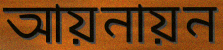
আয়নায়ন